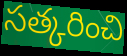
సత్కరించి